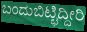
ಬಂದುಬಿಟ್ಟಿದ್ದೀರಿ